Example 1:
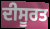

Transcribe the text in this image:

ਦੀਸੂਰਤ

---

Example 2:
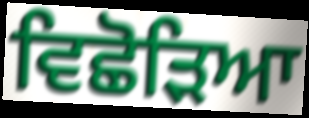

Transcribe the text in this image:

ਵਿਛੋੜਿਆ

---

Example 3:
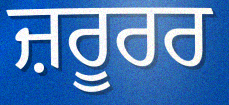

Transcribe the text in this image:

ਜ਼ਰੂਰਰ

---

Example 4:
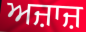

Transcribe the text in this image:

ਅਜ਼ਾਜ਼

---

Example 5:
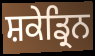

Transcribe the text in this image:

ਸ਼ਕੇਡ੍ਰਿਨ